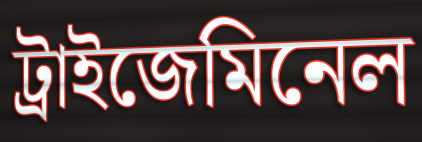
ট্ৰাইজেমিনেল